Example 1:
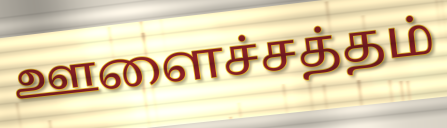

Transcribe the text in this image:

ஊளைச்சத்தம்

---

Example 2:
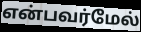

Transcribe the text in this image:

என்பவர்மேல்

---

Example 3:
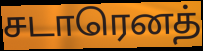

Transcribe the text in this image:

சடாரெனத்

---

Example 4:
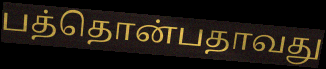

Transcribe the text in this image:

பத்தொன்பதாவது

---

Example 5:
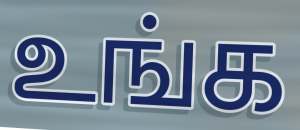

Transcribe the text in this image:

உங்க